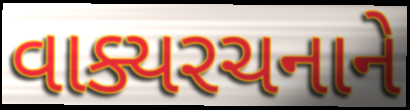
વાક્યરચનાને